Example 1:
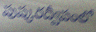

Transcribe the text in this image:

పుష్కరద్వీపంలో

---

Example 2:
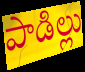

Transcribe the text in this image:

పాడిల్లు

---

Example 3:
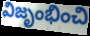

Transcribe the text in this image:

విజృంభించి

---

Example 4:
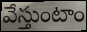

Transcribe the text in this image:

వేస్తుంటాం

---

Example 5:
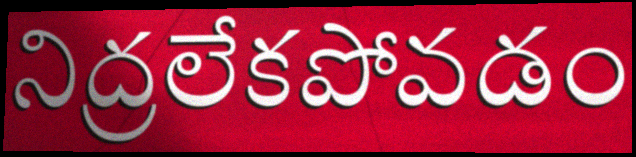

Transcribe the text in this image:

నిద్రలేకపోవడం